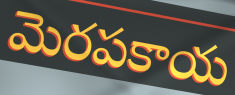
మెరపకాయ